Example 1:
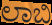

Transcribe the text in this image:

ಲಾಬಿ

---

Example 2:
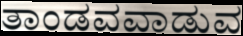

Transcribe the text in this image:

ತಾಂಡವವಾಡುವ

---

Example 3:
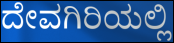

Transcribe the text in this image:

ದೇವಗಿರಿಯಲ್ಲಿ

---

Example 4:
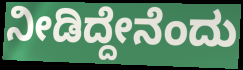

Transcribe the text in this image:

ನೀಡಿದ್ದೇನೆಂದು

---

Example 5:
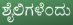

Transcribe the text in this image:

ಶೈಲಿಗಳೆಂದು